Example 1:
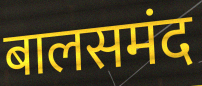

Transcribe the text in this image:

बालसमंद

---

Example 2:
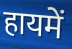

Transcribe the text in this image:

हायमें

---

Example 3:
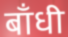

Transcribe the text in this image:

बाँधी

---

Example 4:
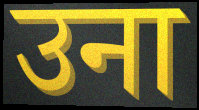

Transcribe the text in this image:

उना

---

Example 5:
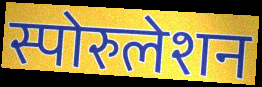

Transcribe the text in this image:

स्पोरुलेशन